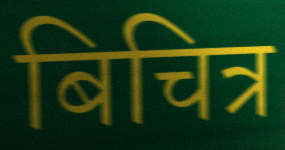
बिचित्र